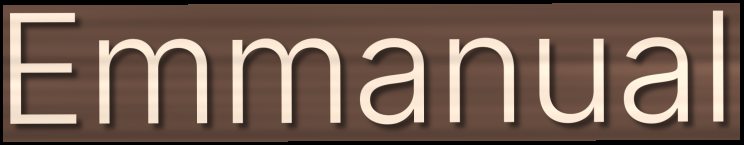
Emmanual